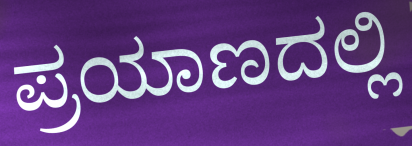
ಪ್ರಯಾಣದಲ್ಲಿ